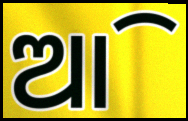
ଆି